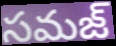
సమజ్